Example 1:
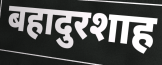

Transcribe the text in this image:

बहादुरशाह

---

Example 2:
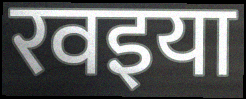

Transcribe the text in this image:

रवइया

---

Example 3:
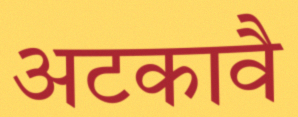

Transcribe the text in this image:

अटकावै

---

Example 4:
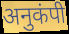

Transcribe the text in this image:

अनुकंपी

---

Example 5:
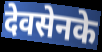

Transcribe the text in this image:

देवसेनके